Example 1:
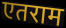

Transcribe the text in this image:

एतराम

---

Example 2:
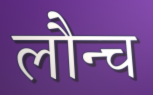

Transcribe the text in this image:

लौन्च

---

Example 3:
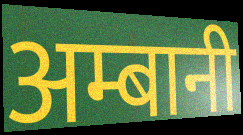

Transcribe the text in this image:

अम्‍बानी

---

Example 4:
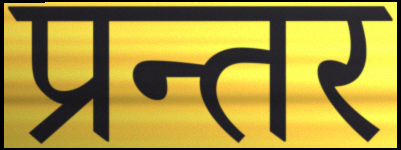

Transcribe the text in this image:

प्रन्तर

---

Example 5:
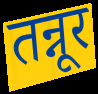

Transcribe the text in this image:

तन्नूर